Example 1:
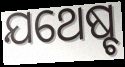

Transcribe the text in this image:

ଯଥେଷ୍ଚ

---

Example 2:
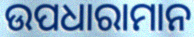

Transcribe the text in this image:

ଉପଧାରାମାନ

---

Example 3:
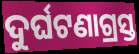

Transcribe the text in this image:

ଦୁର୍ଘଟଣାଗ୍ରସ୍ତ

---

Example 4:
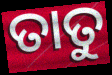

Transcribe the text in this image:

ତାତୁ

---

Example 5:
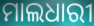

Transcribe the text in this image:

ମାଲଧାରୀ